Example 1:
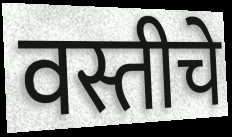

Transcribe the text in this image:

वस्तीचे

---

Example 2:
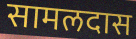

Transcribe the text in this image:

सामलदास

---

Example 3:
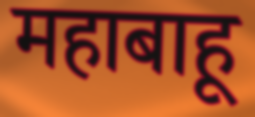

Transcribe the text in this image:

महाबाहू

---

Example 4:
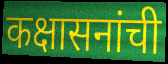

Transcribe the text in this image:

कक्षासनांची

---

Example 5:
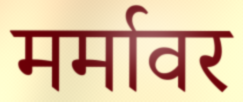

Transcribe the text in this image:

मर्मावर